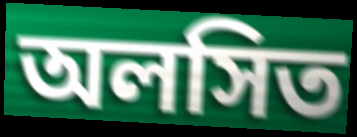
অলসিত